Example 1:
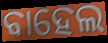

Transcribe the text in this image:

ବାହେଲ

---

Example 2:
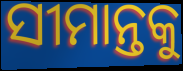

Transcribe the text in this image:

ସୀମାନ୍ତକୁ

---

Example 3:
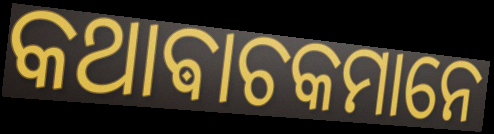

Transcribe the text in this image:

କଥାଵାଚକମାନେ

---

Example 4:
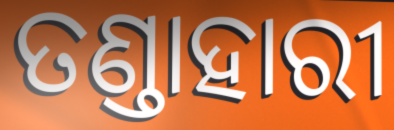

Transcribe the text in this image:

ତଣ୍ଡାହାରୀ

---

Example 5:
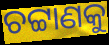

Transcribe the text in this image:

ଚଟ୍ଟାଣକୁ